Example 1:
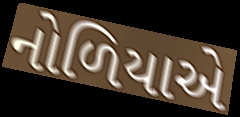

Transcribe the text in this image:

નોળિયાએ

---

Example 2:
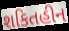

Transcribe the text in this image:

શકિતહીન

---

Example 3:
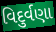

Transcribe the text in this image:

વિદુર્વણા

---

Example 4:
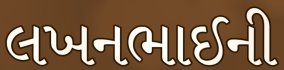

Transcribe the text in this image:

લખનભાઈની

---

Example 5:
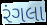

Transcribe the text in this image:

રંગલા